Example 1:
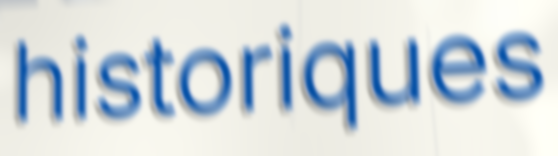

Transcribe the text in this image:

historiques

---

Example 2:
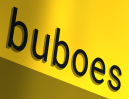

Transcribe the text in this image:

buboes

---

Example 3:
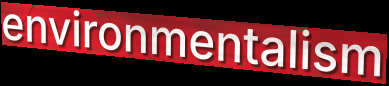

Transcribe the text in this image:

environmentalism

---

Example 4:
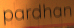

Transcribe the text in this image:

pardhan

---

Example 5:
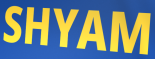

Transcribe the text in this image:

SHYAM